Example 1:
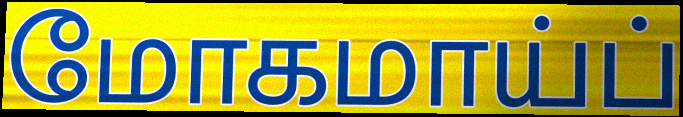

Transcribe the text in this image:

மோகமாய்ப்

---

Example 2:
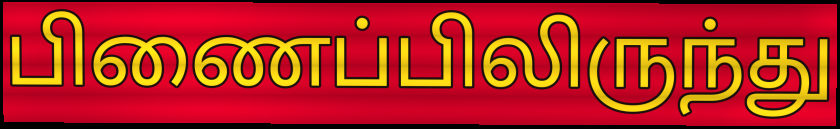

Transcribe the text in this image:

பிணைப்பிலிருந்து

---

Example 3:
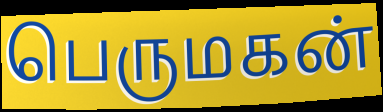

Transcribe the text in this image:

பெருமகன்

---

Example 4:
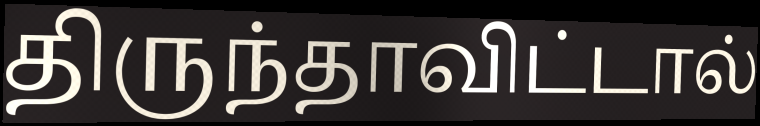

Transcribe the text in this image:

திருந்தாவிட்டால்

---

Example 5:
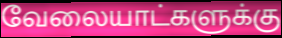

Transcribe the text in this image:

வேலையாட்களுக்கு